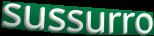
sussurro